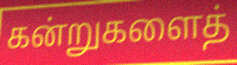
கன்றுகளைத்